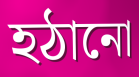
হঠানো